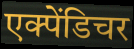
एक्पेंडिचर